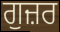
ਗੁਜ਼ਰ